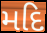
મદિ